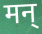
मन्